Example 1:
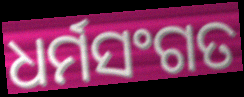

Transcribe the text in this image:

ଧର୍ମସଂଗତ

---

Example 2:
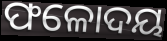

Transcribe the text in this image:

ଫଳୋଦୟ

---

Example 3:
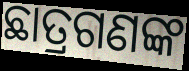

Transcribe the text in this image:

ଛାତ୍ରଗଣଙ୍କ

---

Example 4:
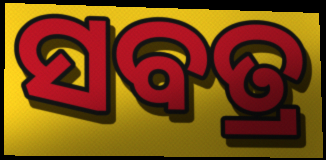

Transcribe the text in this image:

ସବତ୍ର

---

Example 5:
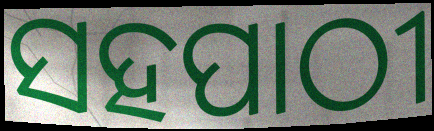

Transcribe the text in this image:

ସହପାଠୀ